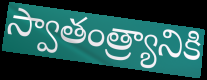
స్వాతంత్ర్యానికి